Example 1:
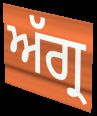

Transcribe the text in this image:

ਅੱਗ੍ਰ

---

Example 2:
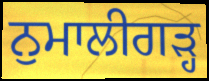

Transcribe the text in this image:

ਨੁਮਾਲੀਗੜ੍ਹ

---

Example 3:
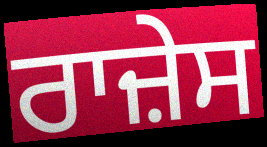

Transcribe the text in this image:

ਰਾਜ਼ੇਸ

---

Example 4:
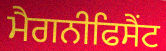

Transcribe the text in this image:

ਮੈਗਨੀਫਿਸੈਂਟ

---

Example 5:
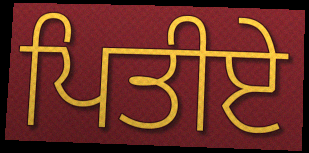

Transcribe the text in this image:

ਪਿਤੀਏ